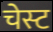
चेस्‍ट